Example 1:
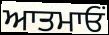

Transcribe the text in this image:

ਆਤਮਾਓਂ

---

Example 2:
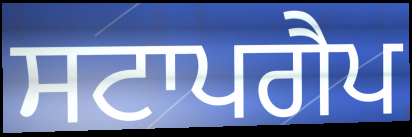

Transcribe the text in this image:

ਸਟਾਪਗੈਪ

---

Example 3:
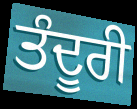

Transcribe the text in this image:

ਤੰਦੂਰੀ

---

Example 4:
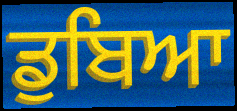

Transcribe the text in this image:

ਡੁਬਿਆ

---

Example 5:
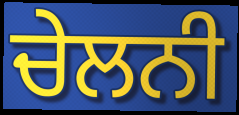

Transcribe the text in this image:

ਚੇਲਨੀ